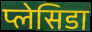
प्लेसिडा